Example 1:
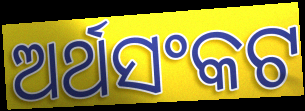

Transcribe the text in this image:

ଅର୍ଥସଂକଟ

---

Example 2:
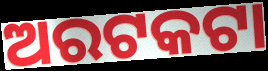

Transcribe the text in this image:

ଅରଟକଟା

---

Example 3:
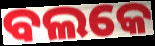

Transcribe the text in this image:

ବଲକେ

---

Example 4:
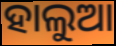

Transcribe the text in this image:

ହାଲୁଆ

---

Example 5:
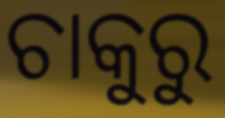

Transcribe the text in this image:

ଚାକୁରୁ